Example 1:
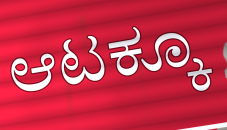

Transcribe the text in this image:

ಆಟಕ್ಕೂ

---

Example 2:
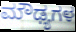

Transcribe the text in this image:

ಮೌಢ್ಯಗಳ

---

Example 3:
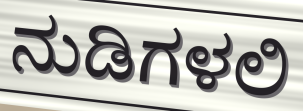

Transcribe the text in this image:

ನುಡಿಗಳಲಿ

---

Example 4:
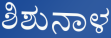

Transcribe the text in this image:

ಶಿಶುನಾಳ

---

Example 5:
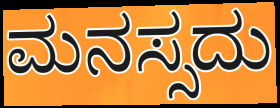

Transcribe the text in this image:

ಮನಸ್ಸದು